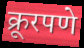
क्रूरपणे